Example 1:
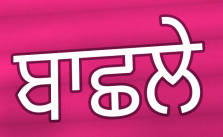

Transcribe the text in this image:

ਬਾਛਲੇ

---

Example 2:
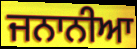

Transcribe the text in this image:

ਜਨਾਨੀਆ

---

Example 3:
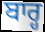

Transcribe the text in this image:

ਬਾਰ੍ਹ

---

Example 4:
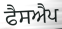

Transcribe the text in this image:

ਫੈਸਐਪ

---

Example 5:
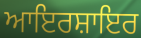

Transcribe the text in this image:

ਆਇਰਸ਼ਾਇਰ